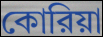
কোরিয়া